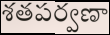
శతపర్వణా